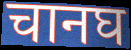
चानघ